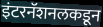
इंटरनॅशनलकडून